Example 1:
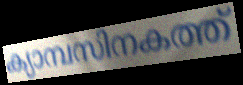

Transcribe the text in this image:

ക്യാമ്പസിനകത്ത്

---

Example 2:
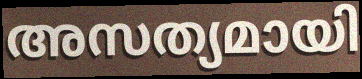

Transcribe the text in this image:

അസത്യമായി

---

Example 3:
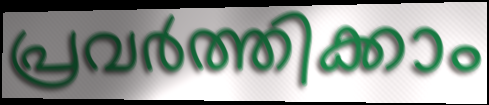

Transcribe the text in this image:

പ്രവർത്തിക്കാം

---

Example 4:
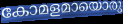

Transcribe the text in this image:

കോമളമായൊരു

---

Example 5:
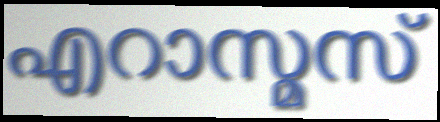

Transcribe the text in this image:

എറാസ്മസ്